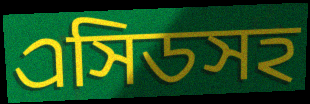
এসিডসহ